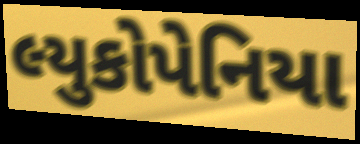
લ્યુકોપેનિયા